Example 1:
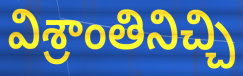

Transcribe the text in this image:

విశ్రాంతినిచ్చి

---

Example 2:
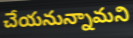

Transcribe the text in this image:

చేయనున్నామని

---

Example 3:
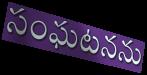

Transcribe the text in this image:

సంఘటనను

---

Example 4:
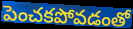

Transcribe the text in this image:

పెంచకపోవడంతో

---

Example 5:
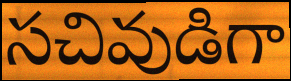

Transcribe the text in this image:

సచివుడిగా